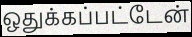
ஒதுக்கப்பட்டேன்